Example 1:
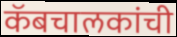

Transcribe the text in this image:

कॅबचालकांची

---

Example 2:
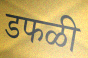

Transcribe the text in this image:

डफळी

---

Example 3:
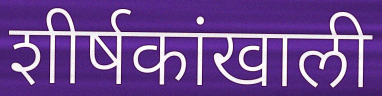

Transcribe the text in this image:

शीर्षकांखाली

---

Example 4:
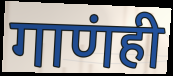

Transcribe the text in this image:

गाणंही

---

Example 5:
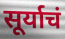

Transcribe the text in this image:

सूर्याचं